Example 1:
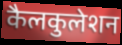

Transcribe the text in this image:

कैलकुलेशन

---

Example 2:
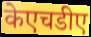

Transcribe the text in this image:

केएचडीए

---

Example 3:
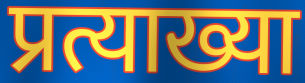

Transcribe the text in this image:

प्रत्याख्या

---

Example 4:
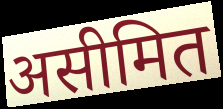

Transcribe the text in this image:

असीमित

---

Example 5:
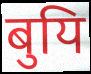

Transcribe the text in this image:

बुयि